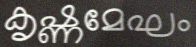
കൃഷ്ണമേഘം